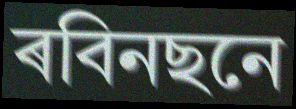
ৰবিনছনে